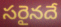
సరైనదే